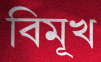
বিমূখ